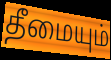
தீமையும்